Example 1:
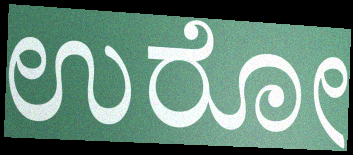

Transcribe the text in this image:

ಉರೋ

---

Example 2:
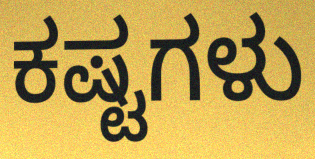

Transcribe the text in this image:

ಕಷ್ಟಗಳು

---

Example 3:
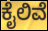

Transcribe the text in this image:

ಕೈಲಿವೆ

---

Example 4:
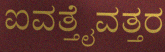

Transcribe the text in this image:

ಐವತ್ತೈವತ್ತರ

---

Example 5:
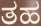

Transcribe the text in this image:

ತಹ